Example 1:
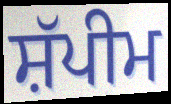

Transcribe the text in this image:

ਸ਼ੱਪੀਮ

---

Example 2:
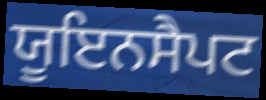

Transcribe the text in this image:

ਯੂਇਨਸੈਪਟ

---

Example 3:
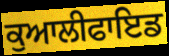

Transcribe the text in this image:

ਕੁਆਲੀਫਾਇਡ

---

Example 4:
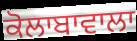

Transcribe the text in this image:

ਕੋਲਾਬਾਵਾਲਾ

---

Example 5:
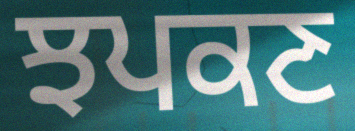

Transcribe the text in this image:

ਝਪਕਣ